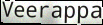
Veerappa